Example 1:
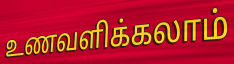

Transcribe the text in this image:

உணவளிக்கலாம்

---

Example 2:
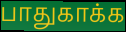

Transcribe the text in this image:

பாதுகாக்க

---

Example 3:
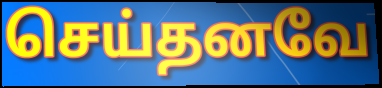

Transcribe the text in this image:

செய்தனவே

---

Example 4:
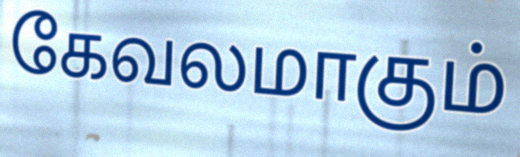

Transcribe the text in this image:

கேவலமாகும்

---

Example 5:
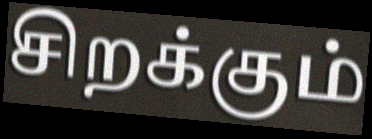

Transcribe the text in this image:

சிறக்கும்